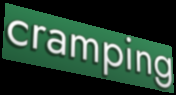
cramping